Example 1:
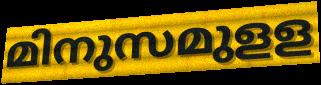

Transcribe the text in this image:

മിനുസമുളള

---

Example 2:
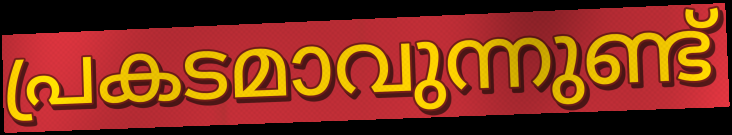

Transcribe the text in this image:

പ്രകടമാവുന്നുണ്ട്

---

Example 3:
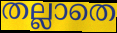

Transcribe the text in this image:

തല്ലാതെ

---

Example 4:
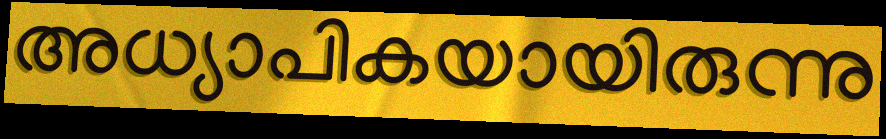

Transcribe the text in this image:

അധ്യാപികയായിരുന്നു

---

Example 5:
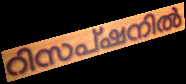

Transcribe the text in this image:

റിസപ്ഷനിൽ